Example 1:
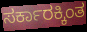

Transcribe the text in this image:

ಸರ್ಕಾರಕ್ಕಿಂತ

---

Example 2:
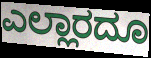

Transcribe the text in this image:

ಎಲ್ಲಾರದೂ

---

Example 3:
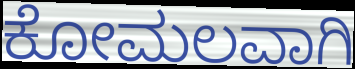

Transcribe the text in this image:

ಕೋಮಲವಾಗಿ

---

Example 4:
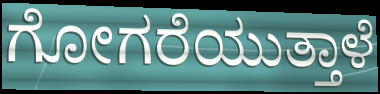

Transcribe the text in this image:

ಗೋಗರೆಯುತ್ತಾಳೆ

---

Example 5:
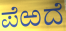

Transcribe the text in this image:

ಪೆಱದೆ